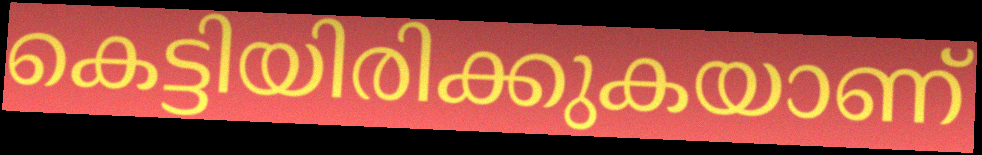
കെട്ടിയിരിക്കുകയാണ്